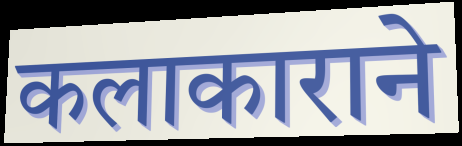
कलाकाराने